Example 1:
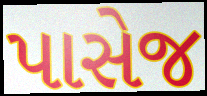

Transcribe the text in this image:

પાસેજ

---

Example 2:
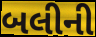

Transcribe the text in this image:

બલીની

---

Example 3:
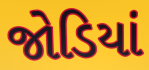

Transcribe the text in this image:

જોડિયાં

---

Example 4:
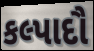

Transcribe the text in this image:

કલ્પાદૌ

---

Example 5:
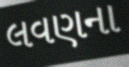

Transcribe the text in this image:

લવણના